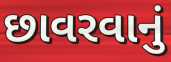
છાવરવાનું